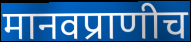
मानवप्राणीच